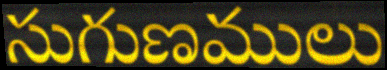
సుగుణములు